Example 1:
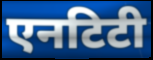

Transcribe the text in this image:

एनटिटी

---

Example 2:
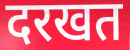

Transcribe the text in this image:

दरखत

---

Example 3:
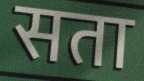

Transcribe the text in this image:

सता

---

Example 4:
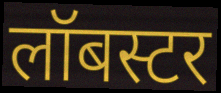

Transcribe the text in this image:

लॉबस्टर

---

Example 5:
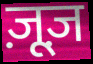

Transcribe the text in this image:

ज़ूज़